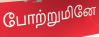
போற்றுமினே